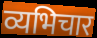
व्यभिचार